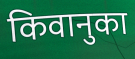
किवानुका